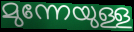
മുന്നേയുള്ള